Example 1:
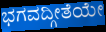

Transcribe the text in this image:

ಭಗವದ್ಗೀತೆಯೇ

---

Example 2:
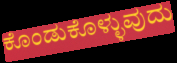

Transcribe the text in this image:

ಕೊಂಡುಕೊಳ್ಳುವುದು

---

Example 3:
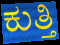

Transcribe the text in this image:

ಕುತ್ತಿ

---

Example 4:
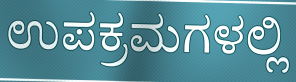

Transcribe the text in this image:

ಉಪಕ್ರಮಗಳಲ್ಲಿ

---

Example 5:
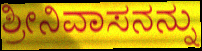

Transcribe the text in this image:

ಶ್ರೀನಿವಾಸನನ್ನು